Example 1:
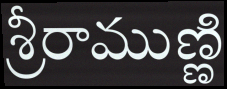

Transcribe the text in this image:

శ్రీరాముణ్ణి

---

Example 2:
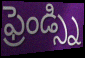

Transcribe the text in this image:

ఫ్రెండ్స్ని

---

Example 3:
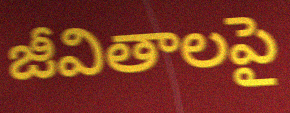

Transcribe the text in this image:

జీవితాలపై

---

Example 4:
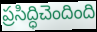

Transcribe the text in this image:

ప్రసిద్ధిచెందింది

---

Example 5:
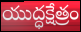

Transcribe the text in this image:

యుద్ధక్షేత్రం